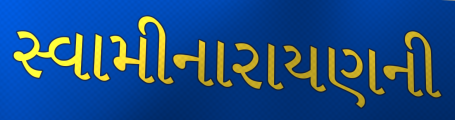
સ્વામીનારાયણની